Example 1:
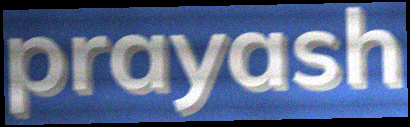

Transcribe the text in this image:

prayash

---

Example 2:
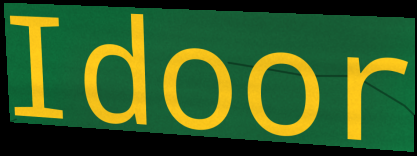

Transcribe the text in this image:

Idoor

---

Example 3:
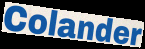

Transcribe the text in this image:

Colander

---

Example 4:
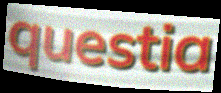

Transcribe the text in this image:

questia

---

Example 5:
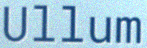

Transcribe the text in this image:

Ullum